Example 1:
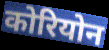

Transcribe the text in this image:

कोरियोन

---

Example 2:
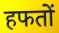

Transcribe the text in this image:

हफतों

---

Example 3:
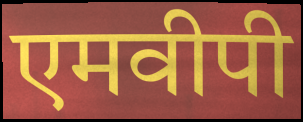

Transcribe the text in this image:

एमवीपी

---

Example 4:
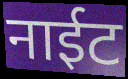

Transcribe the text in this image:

नाईट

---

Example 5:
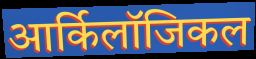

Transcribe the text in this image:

आर्किलॉजिकल